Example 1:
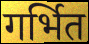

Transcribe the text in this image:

गर्भित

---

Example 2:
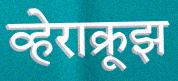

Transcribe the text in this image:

व्हेराक्रूझ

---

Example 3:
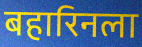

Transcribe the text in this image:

बहारिनला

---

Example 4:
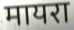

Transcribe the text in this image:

मायरा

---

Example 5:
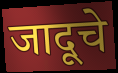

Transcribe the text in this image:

जादूचे